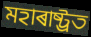
মহাৰাষ্ট্ৰত